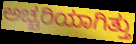
ಅಚ್ಚರಿಯಾಗಿತ್ತು